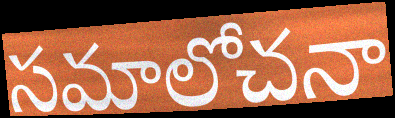
సమాలోచనా